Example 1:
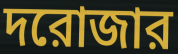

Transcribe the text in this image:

দরোজার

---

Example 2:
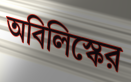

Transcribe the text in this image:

অবিলিস্কের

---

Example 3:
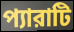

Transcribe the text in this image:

প্যারাটি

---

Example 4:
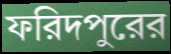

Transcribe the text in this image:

ফরিদপুরের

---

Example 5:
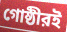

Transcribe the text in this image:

গোষ্ঠীরই